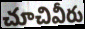
చూచివీరు